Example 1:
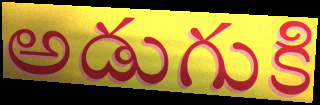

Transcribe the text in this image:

అడుగుకి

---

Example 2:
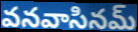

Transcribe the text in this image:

వనవాసినమ్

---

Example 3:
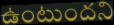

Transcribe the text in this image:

ఉంటుందని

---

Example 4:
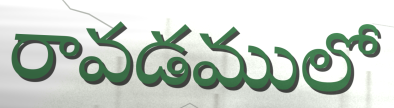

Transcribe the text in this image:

రావడములో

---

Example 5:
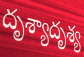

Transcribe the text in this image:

దృశ్యాదృశ్య